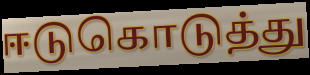
ஈடுகொடுத்து